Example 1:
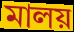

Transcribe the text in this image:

মালয়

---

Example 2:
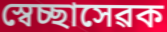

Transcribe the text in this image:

স্বেচ্ছাসেৱক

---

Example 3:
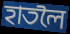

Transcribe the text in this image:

হাতলৈ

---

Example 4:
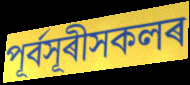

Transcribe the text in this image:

পূৰ্বসূৰীসকলৰ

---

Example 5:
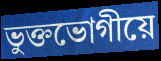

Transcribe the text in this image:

ভুক্তভোগীয়ে